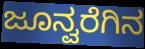
ಜೂನ್ವರೆಗಿನ